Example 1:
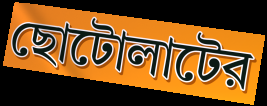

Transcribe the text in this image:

ছোটোলাটের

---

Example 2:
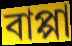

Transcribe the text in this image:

বাপ্পা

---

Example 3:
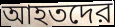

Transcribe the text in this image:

আহতদের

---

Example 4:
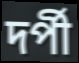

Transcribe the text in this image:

দর্পী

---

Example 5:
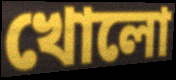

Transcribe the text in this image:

খোলো